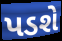
પડશે